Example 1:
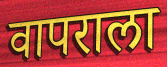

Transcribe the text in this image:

वापराला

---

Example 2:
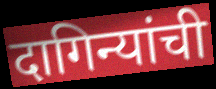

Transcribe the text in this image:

दागिन्यांची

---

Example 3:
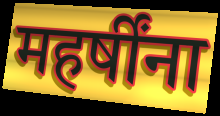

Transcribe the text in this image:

महर्षींना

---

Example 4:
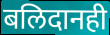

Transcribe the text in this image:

बलिदानही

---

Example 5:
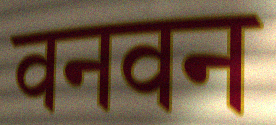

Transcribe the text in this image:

वनवन